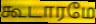
கூடாரமே